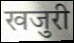
खजुरी